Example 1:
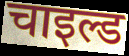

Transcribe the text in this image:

चाइल्ड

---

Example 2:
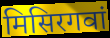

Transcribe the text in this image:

मिसिरगवां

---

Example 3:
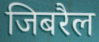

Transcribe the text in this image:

जिबरैल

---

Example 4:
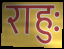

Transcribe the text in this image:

राहुः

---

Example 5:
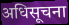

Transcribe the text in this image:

अधिसूचना